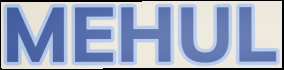
MEHUL